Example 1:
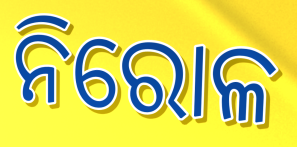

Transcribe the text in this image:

ନିରୋଳ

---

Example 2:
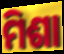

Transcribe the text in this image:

ମିଶା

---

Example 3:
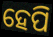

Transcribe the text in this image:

ହେପି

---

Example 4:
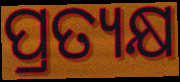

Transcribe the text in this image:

ପ୍ରତ୍ୟକ୍ଷ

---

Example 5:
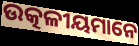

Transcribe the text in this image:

ଉତ୍କଳୀୟମାନେ